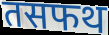
तसफथ